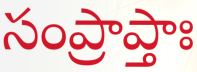
సంప్రాప్తాః